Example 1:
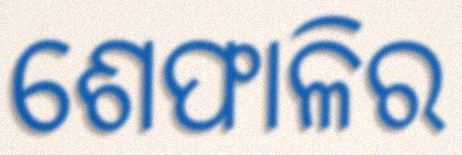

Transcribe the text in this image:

ଶେଫାଳିର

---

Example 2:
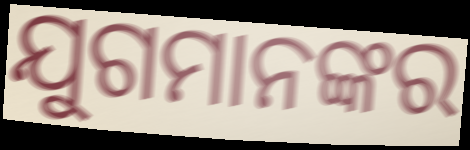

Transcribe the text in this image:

ଯୁଗମାନଙ୍କର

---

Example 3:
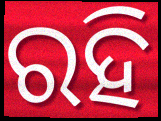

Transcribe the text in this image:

ରହି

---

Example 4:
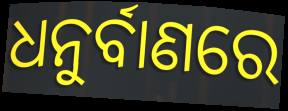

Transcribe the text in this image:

ଧନୁର୍ବାଣରେ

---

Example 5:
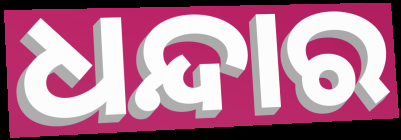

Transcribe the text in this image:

ଧନ୍ଦାର